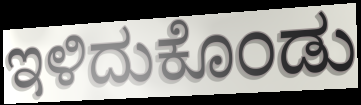
ಇಳಿದುಕೊಂಡು